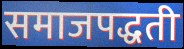
समाजपद्धती